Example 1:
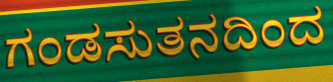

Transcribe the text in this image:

ಗಂಡಸುತನದಿಂದ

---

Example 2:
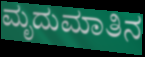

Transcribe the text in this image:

ಮೃದುಮಾತಿನ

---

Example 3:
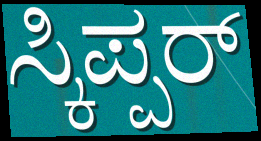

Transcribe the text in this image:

ಸ್ಕಿಪ್ಪರ್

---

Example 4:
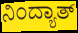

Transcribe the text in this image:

ನಿಂದ್ಯಾತ್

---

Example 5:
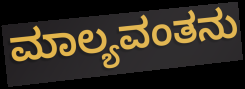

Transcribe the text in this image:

ಮಾಲ್ಯವಂತನು